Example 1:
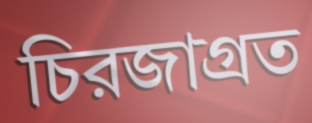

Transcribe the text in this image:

চিরজাগ্রত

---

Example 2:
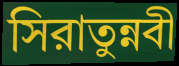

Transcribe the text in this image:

সিরাতুন্নবী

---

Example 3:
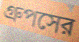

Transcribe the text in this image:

গ্রুপসের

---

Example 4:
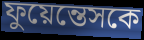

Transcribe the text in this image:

ফুয়েন্তেসকে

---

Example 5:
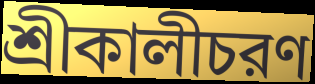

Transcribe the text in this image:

শ্রীকালীচরণ